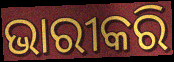
ଭାରୀକରି